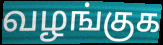
வழங்குக